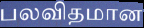
பலவிதமான